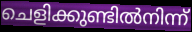
ചെളിക്കുണ്ടിൽനിന്ന്